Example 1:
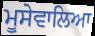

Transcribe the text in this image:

ਮੂਸੇਵਾਲਿਆ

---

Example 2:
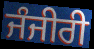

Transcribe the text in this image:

ਜੰਜੀਰੀ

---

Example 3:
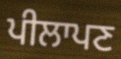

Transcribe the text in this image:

ਪੀਲਾਪਣ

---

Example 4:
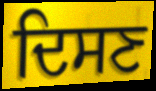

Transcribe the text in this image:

ਦਿਸਣ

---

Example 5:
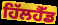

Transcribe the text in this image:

ਹਿੱਲਹੈੱਡ